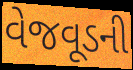
વેજવૂડની